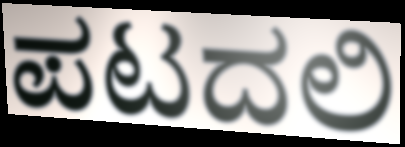
ಪಟದಲಿ